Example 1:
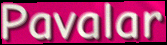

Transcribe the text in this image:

Pavalar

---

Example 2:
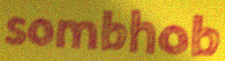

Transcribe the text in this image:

sombhob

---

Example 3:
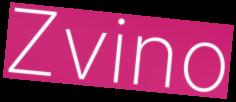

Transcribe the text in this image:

Zvino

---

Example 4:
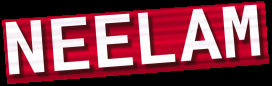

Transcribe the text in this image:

NEELAM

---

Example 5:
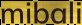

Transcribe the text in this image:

mibali